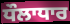
ਧੌਲਾਧਾਰ